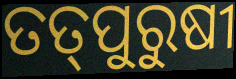
ତତ୍‌ପୁରୁଷୀ